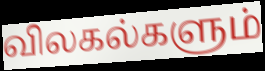
விலகல்களும்